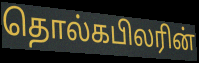
தொல்கபிலரின்